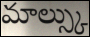
మాల్స్కు